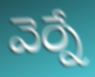
వెర్నే